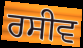
ਰਸੀਵ